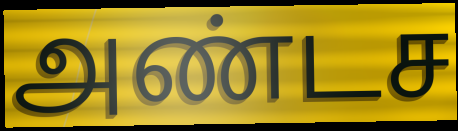
அண்டச